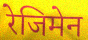
रेजिमेन